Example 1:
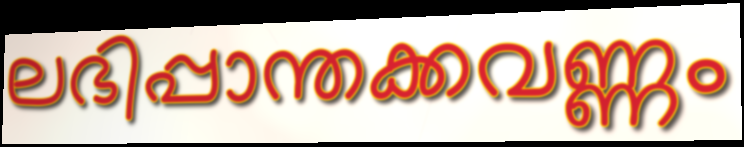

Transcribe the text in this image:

ലഭിപ്പാന്തക്കവണ്ണം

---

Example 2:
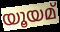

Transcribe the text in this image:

യൂയമ്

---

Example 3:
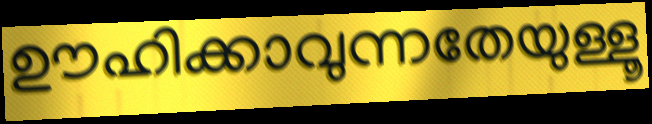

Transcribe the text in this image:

ഊഹിക്കാവുന്നതേയുള്ളൂ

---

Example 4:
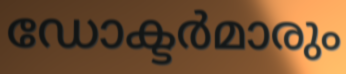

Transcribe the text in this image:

ഡോക്ടർമാരും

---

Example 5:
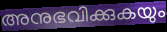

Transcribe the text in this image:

അനുഭവിക്കുകയും